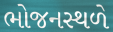
ભોજનસ્થળે